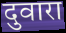
दुवारा